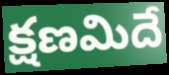
క్షణమిదే